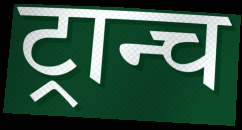
ट्रान्च